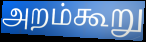
அறம்கூறு